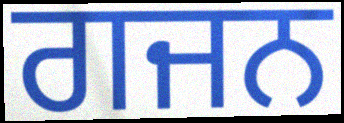
ਗਜਨ